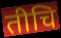
तीचि